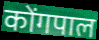
कोंगपाल